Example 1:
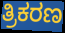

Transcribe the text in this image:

ತ್ರಿಕರಣ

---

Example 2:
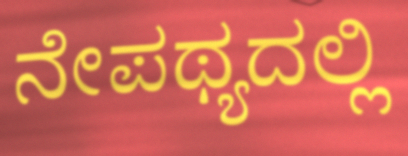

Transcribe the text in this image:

ನೇಪಥ್ಯದಲ್ಲಿ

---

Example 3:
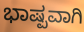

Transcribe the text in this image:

ಭಾಷ್ಪವಾಗಿ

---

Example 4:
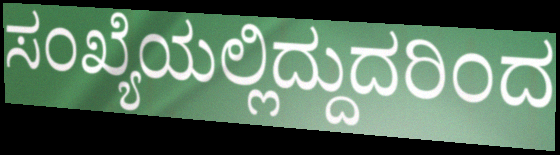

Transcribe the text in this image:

ಸಂಖ್ಯೆಯಲ್ಲಿದ್ದುದರಿಂದ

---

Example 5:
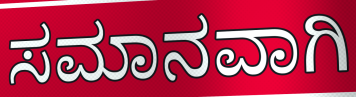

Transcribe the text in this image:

ಸಮಾನವಾಗಿ